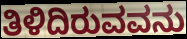
ತಿಳಿದಿರುವವನು